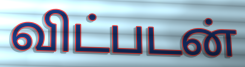
விட்படன்